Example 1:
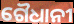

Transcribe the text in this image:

ଗୈଧାନୀ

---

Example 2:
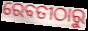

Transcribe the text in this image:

ରେବତୀଠାରୁ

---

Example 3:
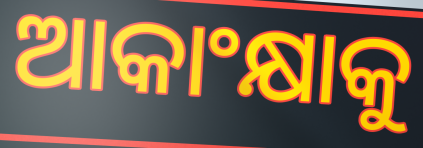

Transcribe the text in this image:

ଆକାଂକ୍ଷାକୁ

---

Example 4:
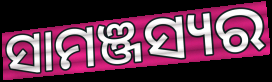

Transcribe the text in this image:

ସାମଞ୍ଜସ୍ୟର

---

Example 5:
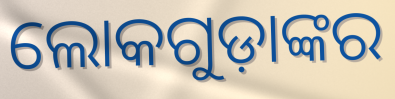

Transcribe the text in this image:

ଲୋକଗୁଡ଼ାଙ୍କର